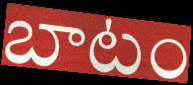
బాటం